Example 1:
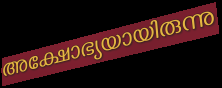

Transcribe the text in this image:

അക്ഷോഭ്യയായിരുന്നു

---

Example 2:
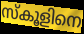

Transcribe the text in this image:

സ്കൂളിനെ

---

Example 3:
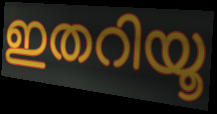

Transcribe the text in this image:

ഇതറിയൂ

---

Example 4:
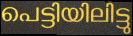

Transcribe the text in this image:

പെട്ടിയിലിട്ടു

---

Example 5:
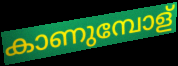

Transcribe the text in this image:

കാണുമ്പോള്